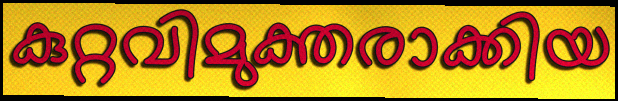
കുറ്റവിമുക്തരാക്കിയ